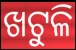
ଖଟୁଳି